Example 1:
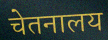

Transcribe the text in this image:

चेतनालय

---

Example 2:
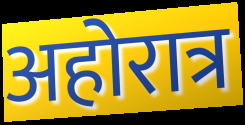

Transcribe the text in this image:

अहोरात्र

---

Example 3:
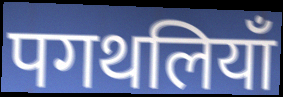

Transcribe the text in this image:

पगथलियाँ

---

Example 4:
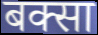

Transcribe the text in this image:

बक्सा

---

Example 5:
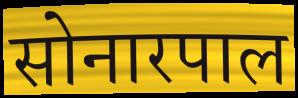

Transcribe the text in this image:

सोनारपाल